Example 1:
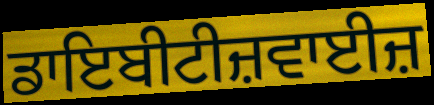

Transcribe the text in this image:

ਡਾਇਬੀਟੀਜ਼ਵਾਈਜ਼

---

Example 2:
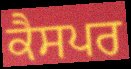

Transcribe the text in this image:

ਕੈਸਪਰ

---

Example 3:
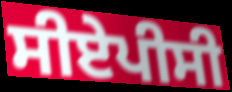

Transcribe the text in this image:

ਸੀਏਪੀਸੀ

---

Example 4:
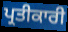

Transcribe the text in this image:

ਪ੍ਰਤੀਕਾਰੀ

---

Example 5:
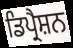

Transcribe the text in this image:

ਡਿਪ੍ਰੈਸ਼ਨ